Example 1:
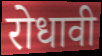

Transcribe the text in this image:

रोधावी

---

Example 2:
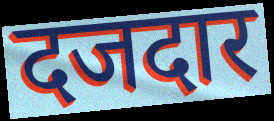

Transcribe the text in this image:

दजदार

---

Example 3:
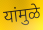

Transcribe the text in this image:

यांमुळे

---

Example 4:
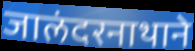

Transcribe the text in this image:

जालंदरनाथाने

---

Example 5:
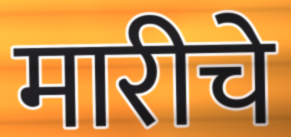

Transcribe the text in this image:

मारीचे